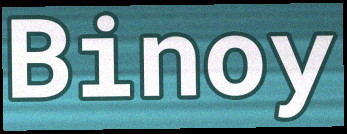
Binoy